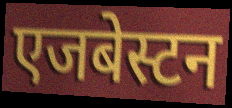
एजबेस्टन